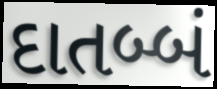
દાતબ્બં